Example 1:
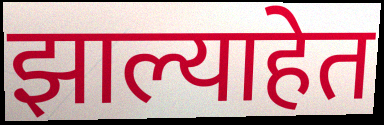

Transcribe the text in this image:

झाल्याहेत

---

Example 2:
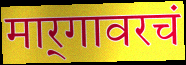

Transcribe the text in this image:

मार्गावरचं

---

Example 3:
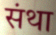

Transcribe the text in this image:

संथा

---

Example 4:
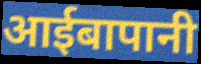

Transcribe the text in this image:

आईबापानी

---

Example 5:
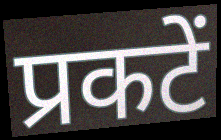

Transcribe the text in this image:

प्रकटें